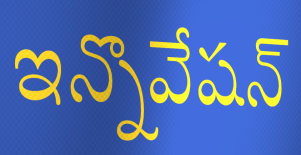
ఇన్నొవేషన్